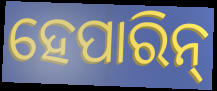
ହେପାରିନ୍